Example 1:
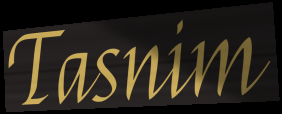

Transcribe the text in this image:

Tasnim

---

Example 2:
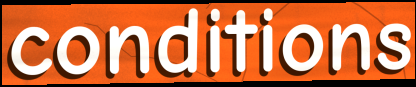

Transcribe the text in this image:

conditions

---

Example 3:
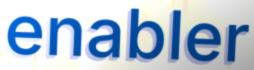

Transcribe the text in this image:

enabler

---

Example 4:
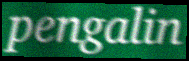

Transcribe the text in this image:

pengalin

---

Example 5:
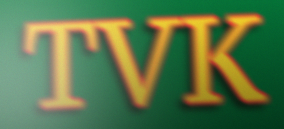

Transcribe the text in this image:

TVK